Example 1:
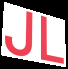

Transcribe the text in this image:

JL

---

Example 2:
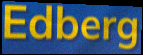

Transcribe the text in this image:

Edberg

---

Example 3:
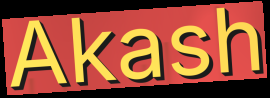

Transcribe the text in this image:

Akash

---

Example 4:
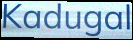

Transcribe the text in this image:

Kadugal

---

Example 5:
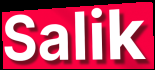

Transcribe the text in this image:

Salik